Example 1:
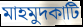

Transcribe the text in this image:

মাহমুদকাটি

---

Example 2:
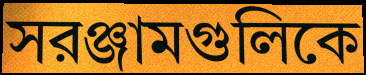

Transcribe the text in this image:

সরঞ্জামগুলিকে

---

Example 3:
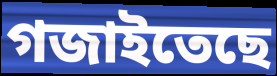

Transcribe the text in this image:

গজাইতেছে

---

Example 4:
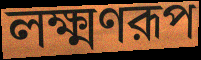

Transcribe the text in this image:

লক্ষ্মণরূপ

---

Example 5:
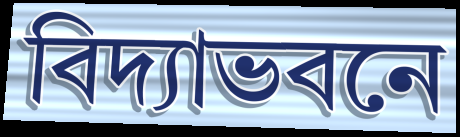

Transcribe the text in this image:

বিদ্যাভবনে